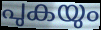
പുകയും